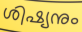
ശിഷ്യനും